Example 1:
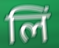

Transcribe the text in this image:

लिं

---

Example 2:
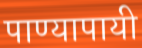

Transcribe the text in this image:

पाण्यापायी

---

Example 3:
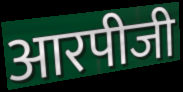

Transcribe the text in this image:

आरपीजी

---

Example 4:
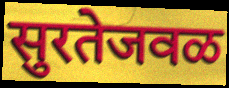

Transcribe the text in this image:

सुरतेजवळ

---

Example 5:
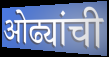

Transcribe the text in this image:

ओढ्यांची